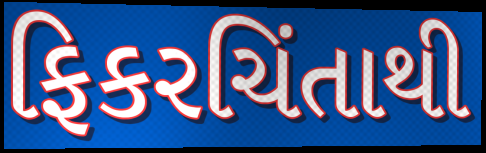
ફિકરચિંતાથી